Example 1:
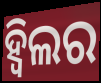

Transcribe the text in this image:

ହ୍ଵିଲର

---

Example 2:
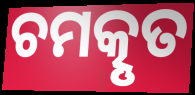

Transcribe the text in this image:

ଚମତ୍କୃତ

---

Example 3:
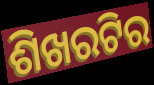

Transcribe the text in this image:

ଶିଖରଟିର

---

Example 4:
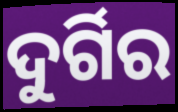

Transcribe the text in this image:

ଦୁର୍ଗିର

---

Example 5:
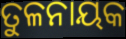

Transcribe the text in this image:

ତୁଳନାୟକ